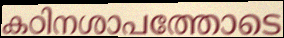
കഠിനശാപത്തോടെ